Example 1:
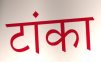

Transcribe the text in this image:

टांका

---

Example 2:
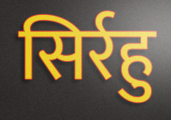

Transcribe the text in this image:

सिर्रहु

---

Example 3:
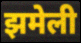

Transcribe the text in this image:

झमेली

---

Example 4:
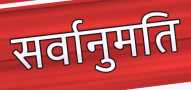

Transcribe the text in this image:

सर्वानुमति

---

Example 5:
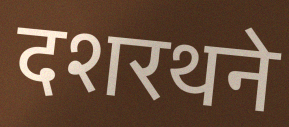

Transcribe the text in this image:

दशरथने